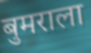
बुमराला